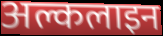
अल्कलाइन